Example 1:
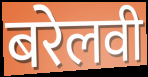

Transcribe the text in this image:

बरेलवी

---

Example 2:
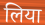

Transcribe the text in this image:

लिया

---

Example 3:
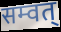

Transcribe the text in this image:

सम्वत्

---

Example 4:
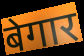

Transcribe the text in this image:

बेगार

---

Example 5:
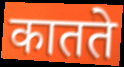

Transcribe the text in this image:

कातते